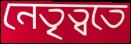
নেতৃত্বতে